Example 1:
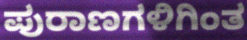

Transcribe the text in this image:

ಪುರಾಣಗಳಿಗಿಂತ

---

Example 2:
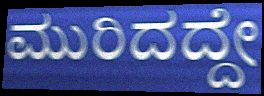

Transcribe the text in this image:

ಮುರಿದದ್ದೇ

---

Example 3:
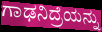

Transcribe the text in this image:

ಗಾಢನಿದ್ರೆಯನ್ನು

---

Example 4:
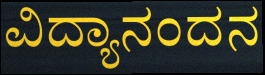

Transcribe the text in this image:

ವಿದ್ಯಾನಂದನ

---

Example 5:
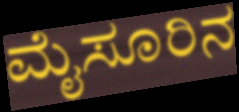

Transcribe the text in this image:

ಮೈಸೂರಿನ